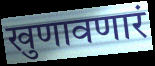
खुणावणारं